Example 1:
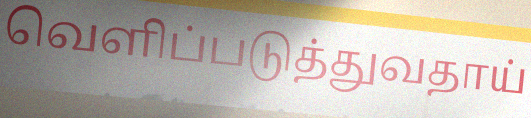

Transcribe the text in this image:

வெளிப்படுத்துவதாய்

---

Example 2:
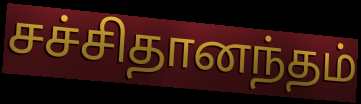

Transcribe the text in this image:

சச்சிதானந்தம்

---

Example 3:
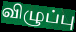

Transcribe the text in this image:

விழுப்பு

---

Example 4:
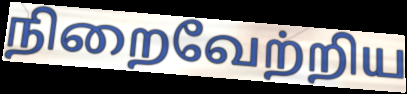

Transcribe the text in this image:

நிறைவேற்றிய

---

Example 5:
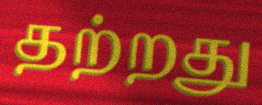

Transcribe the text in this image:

தற்றது